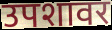
उपशावर